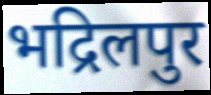
भद्रिलपुर